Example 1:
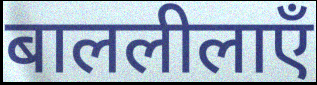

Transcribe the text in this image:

बाललीलाएँ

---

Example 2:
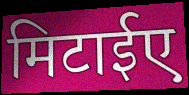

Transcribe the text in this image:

मिटाईए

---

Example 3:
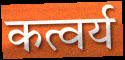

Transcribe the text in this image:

कत्वर्य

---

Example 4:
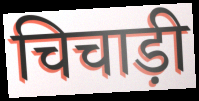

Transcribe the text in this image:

चिचाड़ी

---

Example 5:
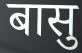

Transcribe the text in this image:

बासु